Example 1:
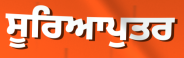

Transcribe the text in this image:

ਸੂਰਿਆਪੁਤਰ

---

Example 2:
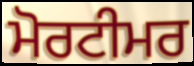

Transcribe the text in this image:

ਮੋਰਟੀਮਰ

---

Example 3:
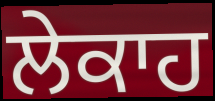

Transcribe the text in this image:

ਲੇਕਾਹ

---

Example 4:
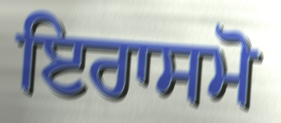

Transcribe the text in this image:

ਇਰਾਸਮੋ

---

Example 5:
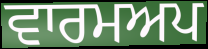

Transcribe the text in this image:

ਵਾਰਮਅਪ